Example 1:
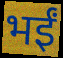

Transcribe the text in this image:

भईं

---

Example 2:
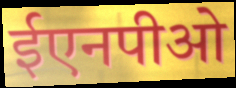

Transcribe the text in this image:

ईएनपीओ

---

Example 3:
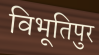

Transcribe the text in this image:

विभूतिपुर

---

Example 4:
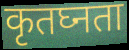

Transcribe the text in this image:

कृतघ्नता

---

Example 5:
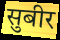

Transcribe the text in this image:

सुबीर